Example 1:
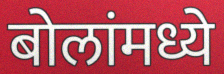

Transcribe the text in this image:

बोलांमध्ये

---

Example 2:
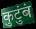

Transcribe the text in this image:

कुटुंबं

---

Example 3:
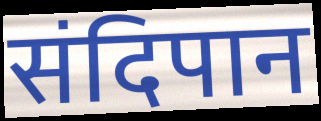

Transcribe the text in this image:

संदिपान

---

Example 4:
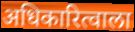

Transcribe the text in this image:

अधिकारित्वाला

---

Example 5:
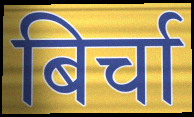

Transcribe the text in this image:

बिर्चा